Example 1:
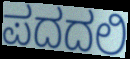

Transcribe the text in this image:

ಪದದಲಿ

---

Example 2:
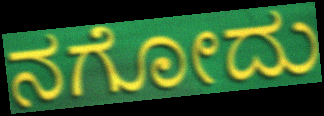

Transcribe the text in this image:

ನಗೋದು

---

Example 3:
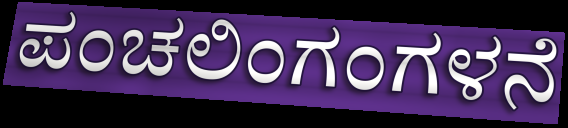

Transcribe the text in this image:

ಪಂಚಲಿಂಗಂಗಳನೆ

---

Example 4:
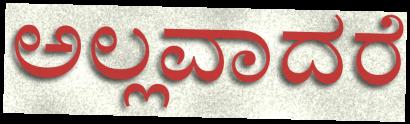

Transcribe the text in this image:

ಅಲ್ಲವಾದರೆ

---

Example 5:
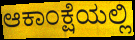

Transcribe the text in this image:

ಆಕಾಂಕ್ಷೆಯಲ್ಲಿ